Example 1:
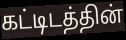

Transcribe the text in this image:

கட்டிடத்தின்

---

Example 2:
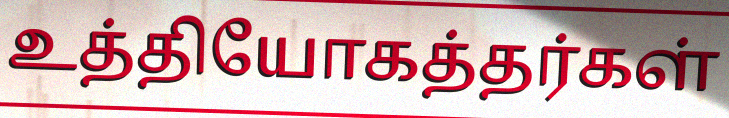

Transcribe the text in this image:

உத்தியோகத்தர்கள்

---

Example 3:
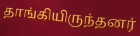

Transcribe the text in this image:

தாங்கியிருந்தனர்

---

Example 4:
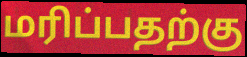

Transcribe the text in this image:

மரிப்பதற்கு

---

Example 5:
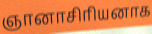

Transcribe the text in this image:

ஞானாசிரியனாக